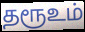
தரூஉம்